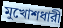
মুখোশধারী